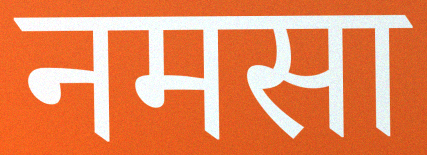
नमसा